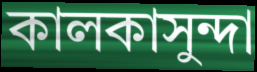
কালকাসুন্দা